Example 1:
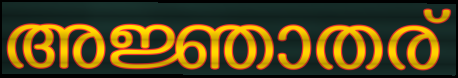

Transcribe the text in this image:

അജ്ഞാതര്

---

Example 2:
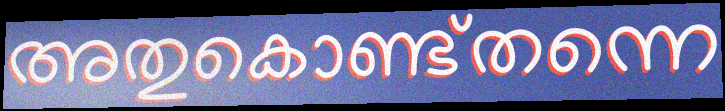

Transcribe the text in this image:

അതുകൊണ്ട്തന്നെ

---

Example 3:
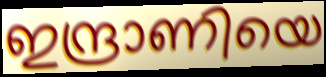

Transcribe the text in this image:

ഇന്ദ്രാണിയെ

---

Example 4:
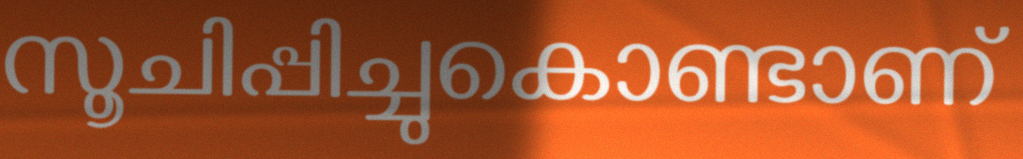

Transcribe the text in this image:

സൂചിപ്പിച്ചുകൊണ്ടാണ്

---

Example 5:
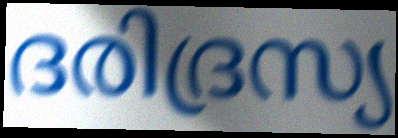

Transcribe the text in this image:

ദരിദ്രസ്യ